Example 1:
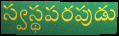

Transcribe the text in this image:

స్వస్థపరపుడు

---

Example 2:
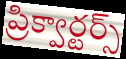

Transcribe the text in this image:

ప్రిక్వార్టర్స్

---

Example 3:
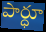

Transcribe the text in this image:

పార్ధూ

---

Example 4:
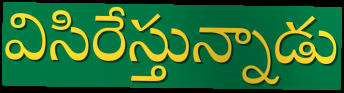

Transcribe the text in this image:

విసిరేస్తున్నాడు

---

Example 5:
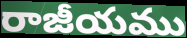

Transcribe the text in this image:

రాజీయము